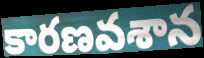
కారణవశాన